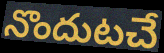
నొందుటచే